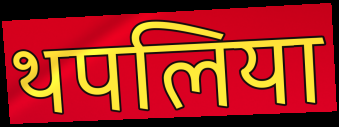
थपलिया